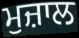
ਮੁਜ਼ਾਲ